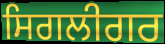
ਸਿਗਲੀਗਰ